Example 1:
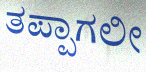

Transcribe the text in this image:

ತಪ್ಪಾಗಲೀ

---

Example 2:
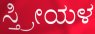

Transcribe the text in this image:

ಸ್ತ್ರೀಯಳ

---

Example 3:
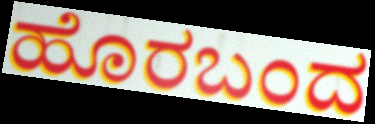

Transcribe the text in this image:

ಹೊರಬಂದ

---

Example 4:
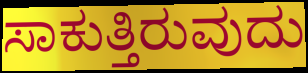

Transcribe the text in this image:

ಸಾಕುತ್ತಿರುವುದು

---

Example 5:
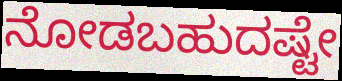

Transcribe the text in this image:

ನೋಡಬಹುದಷ್ಟೇ